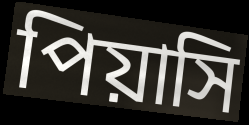
পিয়াসি